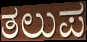
ತಲುಪ